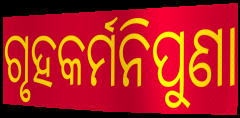
ଗୃହକର୍ମନିପୁଣା